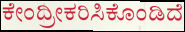
ಕೇಂದ್ರೀಕರಿಸಿಕೊಂಡಿದೆ